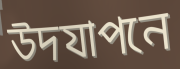
উদযাপনে